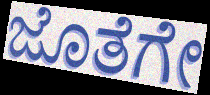
ಜೊತೆಗೇ